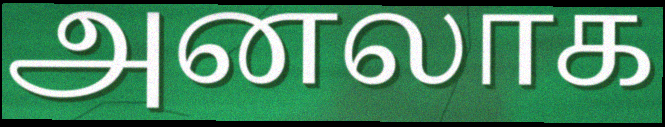
அனலாக